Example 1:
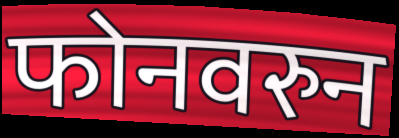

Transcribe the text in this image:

फोनवरुन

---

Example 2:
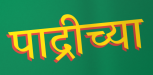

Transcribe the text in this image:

पाद्रीच्या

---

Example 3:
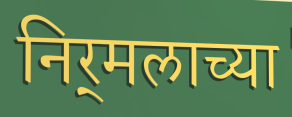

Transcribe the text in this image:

निर्मलाच्या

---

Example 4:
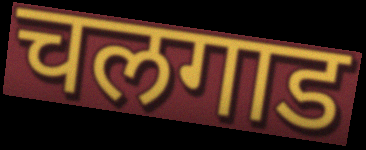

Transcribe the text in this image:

चलगाड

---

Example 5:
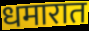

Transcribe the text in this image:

धमारात